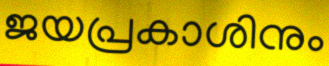
ജയപ്രകാശിനും